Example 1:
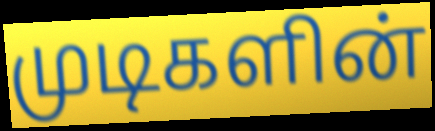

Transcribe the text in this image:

முடிகளின்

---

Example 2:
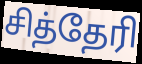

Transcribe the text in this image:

சித்தேரி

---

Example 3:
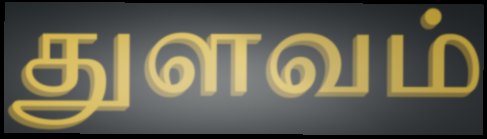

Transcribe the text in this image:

துளவம்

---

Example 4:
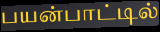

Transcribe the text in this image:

பயன்பாட்டில்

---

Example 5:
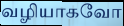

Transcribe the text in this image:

வழியாகவோ